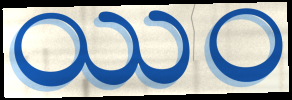
యిం